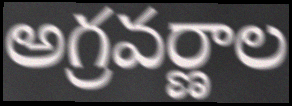
అగ్రవర్ణాల